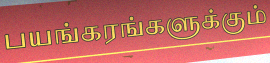
பயங்கரங்களுக்கும்